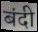
बंदी